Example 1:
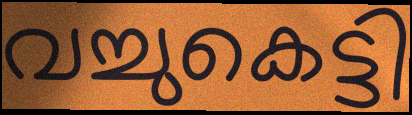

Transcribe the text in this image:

വച്ചുകെട്ടി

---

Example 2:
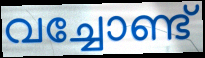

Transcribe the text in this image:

വച്ചോണ്ട്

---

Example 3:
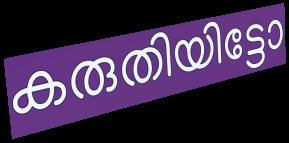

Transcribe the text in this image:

കരുതിയിട്ടോ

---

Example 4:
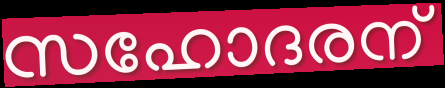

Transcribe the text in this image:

സഹോദരന്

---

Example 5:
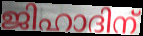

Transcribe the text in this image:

ജിഹാദിന്